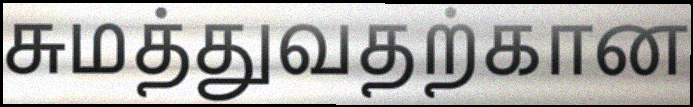
சுமத்துவதற்கான